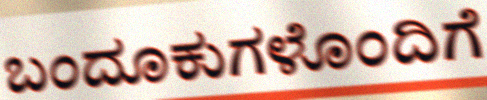
ಬಂದೂಕುಗಳೊಂದಿಗೆ